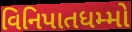
વિનિપાતધમ્મો